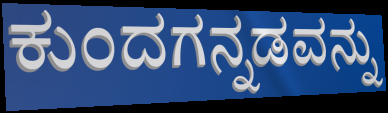
ಕುಂದಗನ್ನಡವನ್ನು